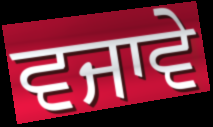
ਵਜਾਵੇ